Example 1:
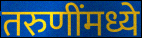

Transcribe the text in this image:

तरुणींमध्ये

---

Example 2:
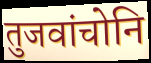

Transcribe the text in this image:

तुजवांचोनि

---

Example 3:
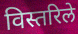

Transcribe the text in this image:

विस्तरिले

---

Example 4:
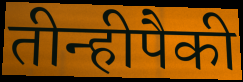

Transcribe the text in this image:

तीन्हीपैकी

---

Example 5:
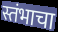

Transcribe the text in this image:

स्तंभाचा